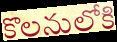
కొలనులోకి